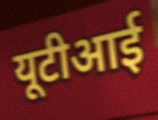
यूटीआई